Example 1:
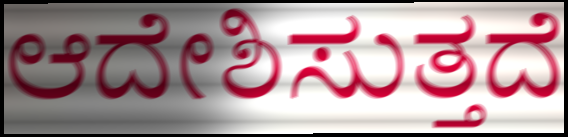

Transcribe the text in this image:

ಆದೇಶಿಸುತ್ತದೆ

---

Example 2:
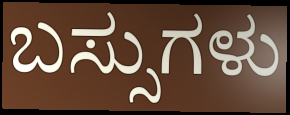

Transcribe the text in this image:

ಬಸ್ಸುಗಳು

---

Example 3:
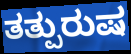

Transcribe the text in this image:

ತತ್ಪುರುಷ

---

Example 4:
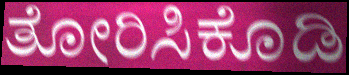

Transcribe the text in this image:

ತೋರಿಸಿಕೊಡಿ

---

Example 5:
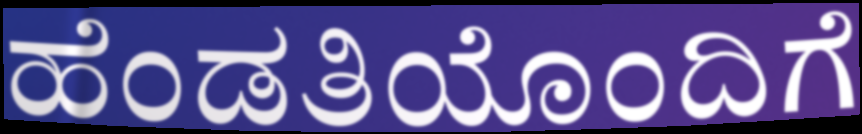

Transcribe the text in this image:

ಹೆಂಡತಿಯೊಂದಿಗೆ